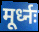
मूर्ध्नः